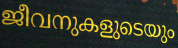
ജീവനുകളുടെയും